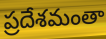
ప్రదేశమంతా